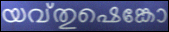
യവ്തുഷെങ്കോ